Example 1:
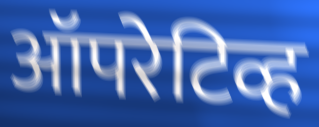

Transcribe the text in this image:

ऑपरेटिव्ह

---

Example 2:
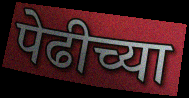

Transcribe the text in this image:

पेढीच्या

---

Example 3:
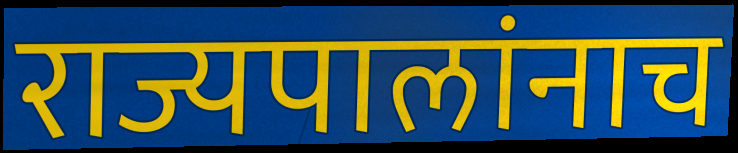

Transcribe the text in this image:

राज्यपालांनाच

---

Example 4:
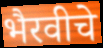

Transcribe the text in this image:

भैरवीचे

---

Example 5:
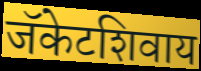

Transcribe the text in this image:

जॅकेटशिवाय